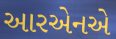
આરએનએ